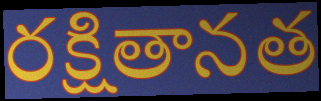
రక్షితానత